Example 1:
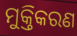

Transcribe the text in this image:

ମୁକ୍ତିକରଣ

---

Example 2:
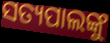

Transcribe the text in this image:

ସତ୍ୟପାଲଙ୍କୁ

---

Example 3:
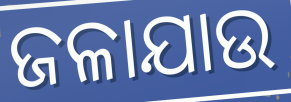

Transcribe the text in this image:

ଜଳାଯାଉ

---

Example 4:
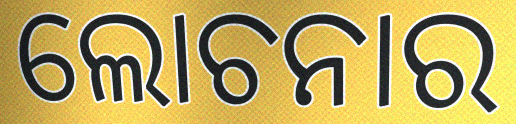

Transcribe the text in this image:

ଲୋଚନାର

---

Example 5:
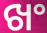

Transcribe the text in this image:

ଖଂ